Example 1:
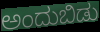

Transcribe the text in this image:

ಅಂದುಬಿಡು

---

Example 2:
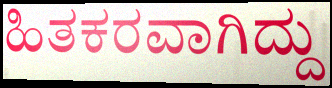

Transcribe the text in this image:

ಹಿತಕರವಾಗಿದ್ದು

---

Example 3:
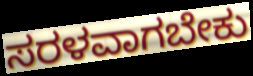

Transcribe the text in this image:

ಸರಳವಾಗಬೇಕು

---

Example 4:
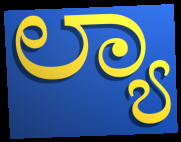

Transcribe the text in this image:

ಲ್ಯಾ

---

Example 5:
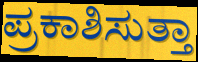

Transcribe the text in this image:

ಪ್ರಕಾಶಿಸುತ್ತಾ